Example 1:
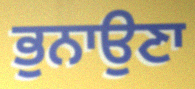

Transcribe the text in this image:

ਭੁਨਾਉਣਾ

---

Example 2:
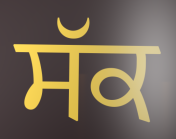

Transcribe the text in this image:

ਸੱਕ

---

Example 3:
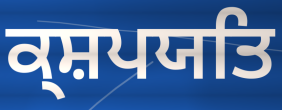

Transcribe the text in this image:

ਕ੍ਸ਼ਪਯਤਿ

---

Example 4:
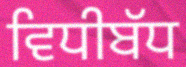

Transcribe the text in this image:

ਵਿਧੀਬੱਧ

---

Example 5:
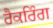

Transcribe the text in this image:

ਰੈਕਰਿੰਗ